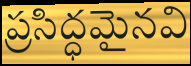
ప్రసిద్ధమైనవి